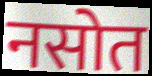
नसोत